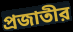
প্রজাতীর